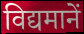
विद्यमानें